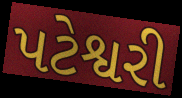
પટેશ્વરી